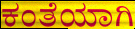
ಕಂತೆಯಾಗಿ